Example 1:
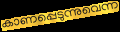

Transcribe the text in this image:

കാണപ്പെടുന്നുവെന്ന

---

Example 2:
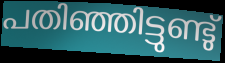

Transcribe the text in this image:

പതിഞ്ഞിട്ടുണ്ടു്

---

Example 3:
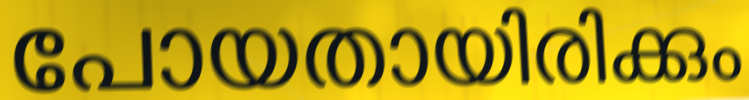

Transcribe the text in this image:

പോയതായിരിക്കും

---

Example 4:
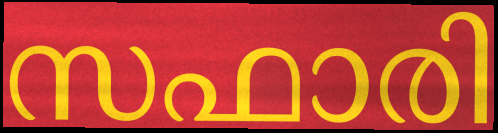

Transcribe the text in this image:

സഫാരി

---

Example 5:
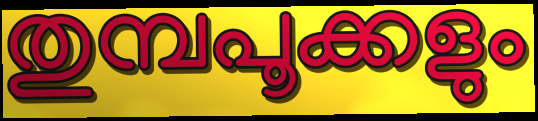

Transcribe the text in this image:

തുമ്പപൂക്കളും